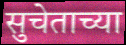
सुचेताच्या